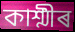
কাশ্মীৰ